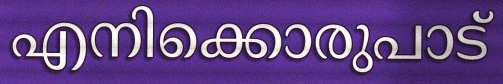
എനിക്കൊരുപാട്